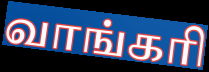
வாங்கரி